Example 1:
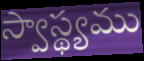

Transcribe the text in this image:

స్వాస్థ్యము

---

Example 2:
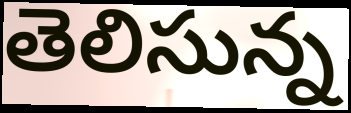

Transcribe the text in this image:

తెలిసున్న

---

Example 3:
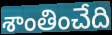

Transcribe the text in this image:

శాంతించేది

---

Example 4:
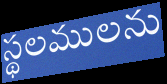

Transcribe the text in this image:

స్థలములను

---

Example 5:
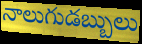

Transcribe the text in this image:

నాలుగుడబ్బులు